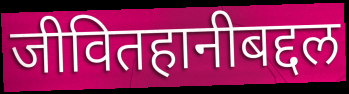
जीवितहानीबद्दल